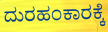
ದುರಹಂಕಾರಕ್ಕೆ